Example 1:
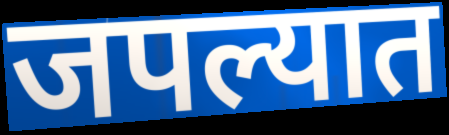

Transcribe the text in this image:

जपल्यात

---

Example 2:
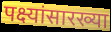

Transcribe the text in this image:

पक्ष्यांसारख्या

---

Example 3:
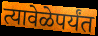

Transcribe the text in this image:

त्यावेळेपर्यंत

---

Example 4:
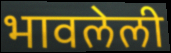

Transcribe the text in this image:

भावलेली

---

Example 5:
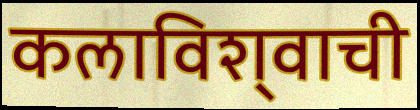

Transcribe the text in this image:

कलाविश्वाची